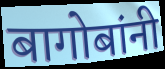
बागोबांनी